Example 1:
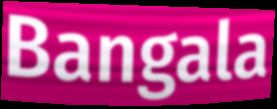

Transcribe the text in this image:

Bangala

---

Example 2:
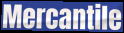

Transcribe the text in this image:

Mercantile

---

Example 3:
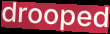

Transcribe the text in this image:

drooped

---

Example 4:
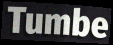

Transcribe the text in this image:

Tumbe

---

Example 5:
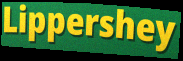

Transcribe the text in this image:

Lippershey